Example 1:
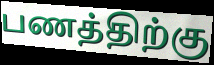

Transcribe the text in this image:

பணத்திற்கு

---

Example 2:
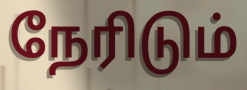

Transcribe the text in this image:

நேரிடும்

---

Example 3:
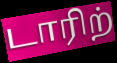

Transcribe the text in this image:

டாரிற்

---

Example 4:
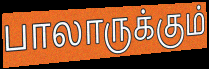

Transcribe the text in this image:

பாலாருக்கும்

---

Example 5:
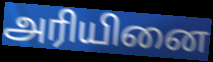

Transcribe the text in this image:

அரியினை